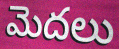
మెదలు